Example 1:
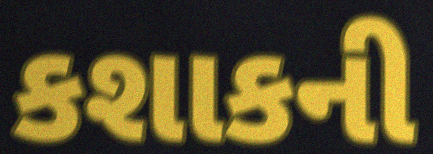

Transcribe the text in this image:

કશાકની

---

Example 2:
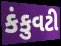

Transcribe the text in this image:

કંકુવટી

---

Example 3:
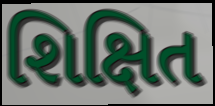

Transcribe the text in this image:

શિક્ષિત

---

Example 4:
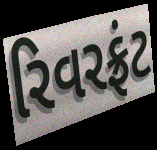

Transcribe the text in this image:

રિવરફ્રંટ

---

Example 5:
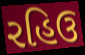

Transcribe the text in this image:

રહિઉ